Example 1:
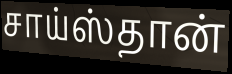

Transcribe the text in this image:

சாய்ஸ்தான்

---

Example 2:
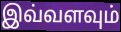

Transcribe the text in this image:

இவ்வளவும்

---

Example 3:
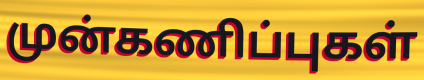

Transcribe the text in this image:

முன்கணிப்புகள்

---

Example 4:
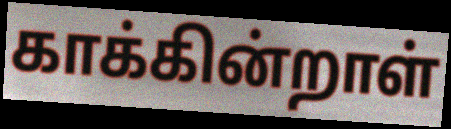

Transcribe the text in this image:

காக்கின்றாள்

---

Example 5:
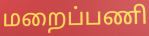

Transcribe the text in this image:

மறைப்பணி